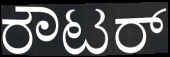
ರೌಟರ್